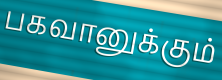
பகவானுக்கும்